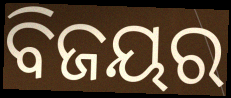
ବିଜୟର